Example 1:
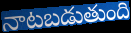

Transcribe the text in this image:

నాటబడుతుంది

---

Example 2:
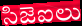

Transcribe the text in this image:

సిజెఐలు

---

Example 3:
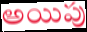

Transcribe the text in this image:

అయిపు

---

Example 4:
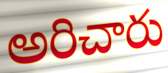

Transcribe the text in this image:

అరిచారు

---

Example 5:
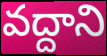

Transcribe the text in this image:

వద్దాని